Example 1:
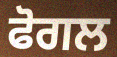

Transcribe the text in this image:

ਫੋਗਲ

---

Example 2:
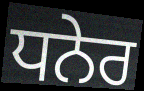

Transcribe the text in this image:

ਧਨੇਰ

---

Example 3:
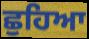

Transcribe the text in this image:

ਛੁਹਿਆ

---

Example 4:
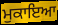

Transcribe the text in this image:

ਮੁਕਾਇਆ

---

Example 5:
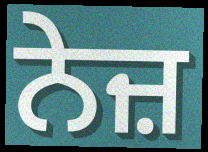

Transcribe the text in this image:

ਨੇਜ਼